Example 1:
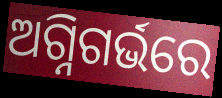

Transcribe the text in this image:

ଅଗ୍ନିଗର୍ଭରେ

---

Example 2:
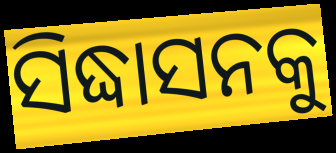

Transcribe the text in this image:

ସିଦ୍ଧାସନକୁ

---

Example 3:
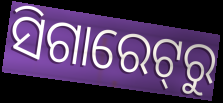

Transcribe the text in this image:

ସିଗାରେଟ୍‌ରୁ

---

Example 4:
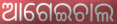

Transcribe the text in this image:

ଆଗେଇଚାଲ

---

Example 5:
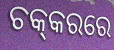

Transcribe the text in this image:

ଚକ୍‌କରରେ